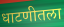
धाटणीतला